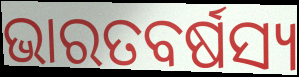
ଭାରତବର୍ଷସ୍ୟ